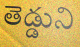
తెడ్డుని